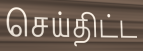
செய்திட்ட